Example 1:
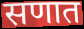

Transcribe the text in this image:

सणात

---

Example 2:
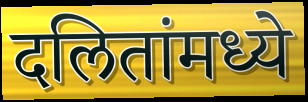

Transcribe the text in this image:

दलितांमध्ये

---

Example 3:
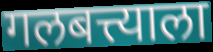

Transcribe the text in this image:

गलबत्त्याला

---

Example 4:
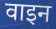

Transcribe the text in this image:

वाइन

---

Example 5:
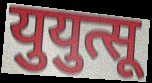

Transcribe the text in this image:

युयुत्सू